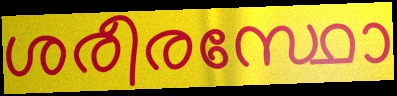
ശരീരസ്ഥോ